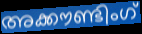
അക്കൗണ്ടിംഗ്